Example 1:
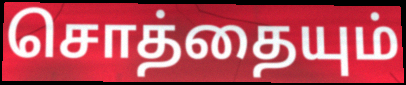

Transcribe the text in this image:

சொத்தையும்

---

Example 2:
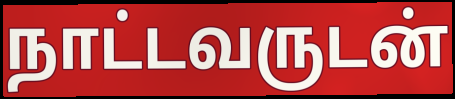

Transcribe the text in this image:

நாட்டவருடன்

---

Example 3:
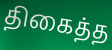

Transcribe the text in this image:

திகைத்த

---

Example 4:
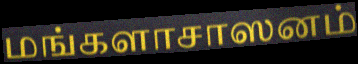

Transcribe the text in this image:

மங்களாசாஸனம்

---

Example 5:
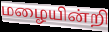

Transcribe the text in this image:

மழையின்றி